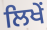
ਲਿਖੇਂ